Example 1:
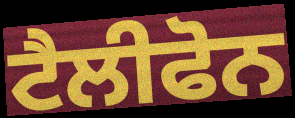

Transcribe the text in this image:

ਟੈਲੀਫੋਨ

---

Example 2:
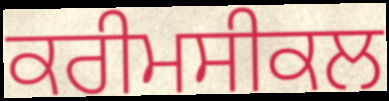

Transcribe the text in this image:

ਕਰੀਮਸੀਕਲ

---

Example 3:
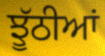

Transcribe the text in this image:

ਝੂੱਠੀਆਂ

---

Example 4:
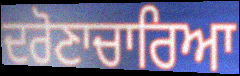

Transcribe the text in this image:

ਦਰੋਣਾਚਾਰਿਆ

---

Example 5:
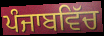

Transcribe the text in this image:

ਪੰਜਾਬਵਿੱਚ